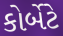
કોર્બેટે